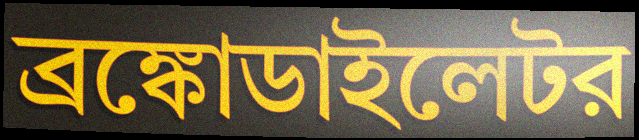
ব্রঙ্কোডাইলেটর